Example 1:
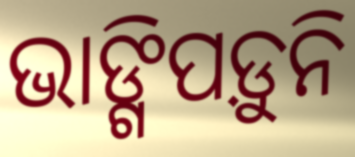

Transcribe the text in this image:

ଭାଙ୍ଗିପଡ଼ୁନି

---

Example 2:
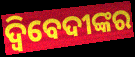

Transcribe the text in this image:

ଦ୍ଵିବେଦୀଙ୍କର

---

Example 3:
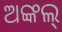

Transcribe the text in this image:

ଅଙ୍କଲ୍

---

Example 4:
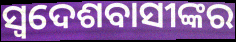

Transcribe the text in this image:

ସ୍ୱଦେଶବାସୀଙ୍କର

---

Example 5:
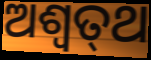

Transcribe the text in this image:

ଅଶ୍ଵତ୍‌ଥ